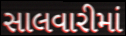
સાલવારીમાં